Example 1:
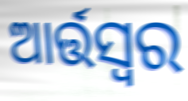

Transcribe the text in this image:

ଆର୍ତ୍ତସ୍ୱର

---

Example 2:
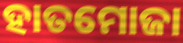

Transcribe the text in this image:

ହାତମୋଜା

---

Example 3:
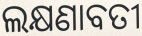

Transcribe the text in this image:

ଲକ୍ଷଣାବତୀ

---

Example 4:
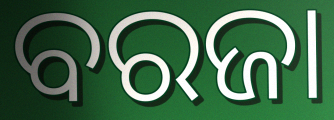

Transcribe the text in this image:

ବରଜା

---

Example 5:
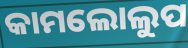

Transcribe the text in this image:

କାମଲୋଲୁପ